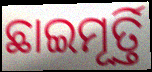
ଛାଇମୂର୍ତ୍ତି